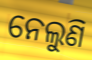
ନେଲୁଣି